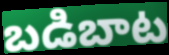
బడిబాట